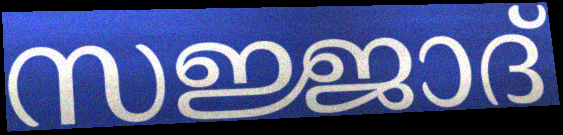
സജ്ജാദ്